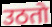
उठतो